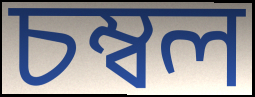
চম্বল